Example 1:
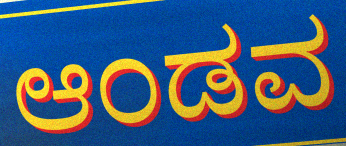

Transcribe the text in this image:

ಆಂಡವ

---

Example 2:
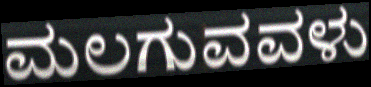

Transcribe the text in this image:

ಮಲಗುವವಳು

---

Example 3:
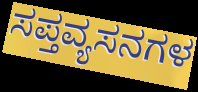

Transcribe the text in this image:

ಸಪ್ತವ್ಯಸನಗಳ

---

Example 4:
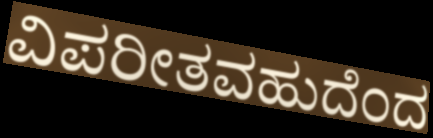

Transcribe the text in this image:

ವಿಪರೀತವಹುದೆಂದ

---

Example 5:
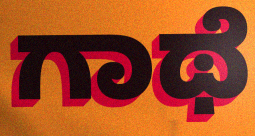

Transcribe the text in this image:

ಗಾಥೆ